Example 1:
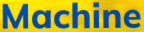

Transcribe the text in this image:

Machine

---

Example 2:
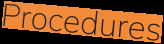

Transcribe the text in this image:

Procedures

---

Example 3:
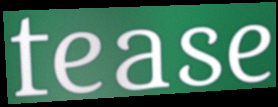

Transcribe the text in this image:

tease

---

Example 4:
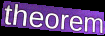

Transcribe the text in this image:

theorem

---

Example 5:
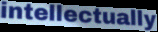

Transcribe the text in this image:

intellectually